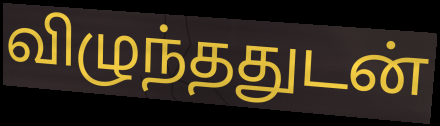
விழுந்ததுடன்